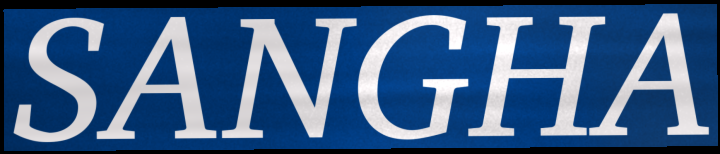
SANGHA